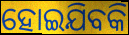
ହୋଇଯିବକି